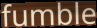
fumble